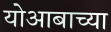
योआबाच्या